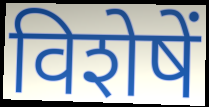
विशेषें